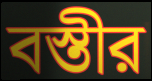
বস্তীর